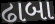
ઢાબા